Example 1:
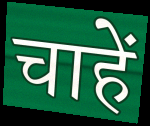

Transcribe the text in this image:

चाहें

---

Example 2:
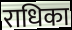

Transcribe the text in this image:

राधिका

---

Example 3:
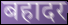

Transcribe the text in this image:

बहादर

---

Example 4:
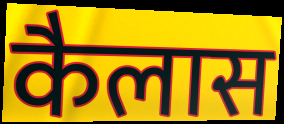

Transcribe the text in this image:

कैलास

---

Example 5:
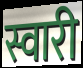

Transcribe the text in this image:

स्वारी